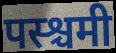
पस्श्चमी